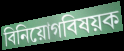
বিনিয়োগবিষয়ক